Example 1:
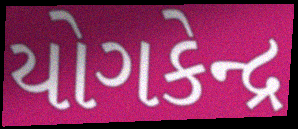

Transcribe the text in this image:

યોગકેન્દ્ર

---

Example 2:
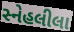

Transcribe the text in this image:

સ્નેહલીલા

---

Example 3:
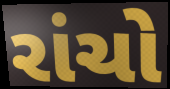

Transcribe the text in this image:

રાંચો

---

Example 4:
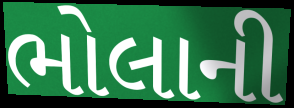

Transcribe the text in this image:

ભોલાની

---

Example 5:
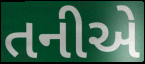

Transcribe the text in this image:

તનીએ